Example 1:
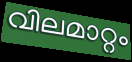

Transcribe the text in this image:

വിലമാറ്റം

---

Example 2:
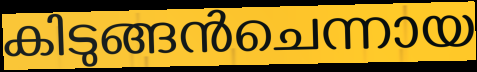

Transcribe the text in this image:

കിടുങ്ങൻചെന്നായ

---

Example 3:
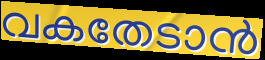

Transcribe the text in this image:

വകതേടാൻ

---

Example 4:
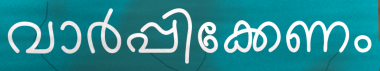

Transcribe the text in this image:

വാർപ്പിക്കേണം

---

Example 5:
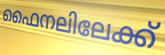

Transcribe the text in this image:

ഫൈനലിലേക്ക്